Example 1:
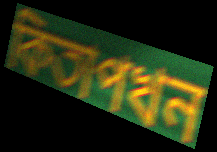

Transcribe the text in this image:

কিতাপখন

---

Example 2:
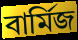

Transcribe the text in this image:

বাৰ্মিজ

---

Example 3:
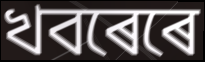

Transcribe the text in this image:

খবৰেৰে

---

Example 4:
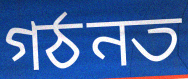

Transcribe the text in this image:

গঠনত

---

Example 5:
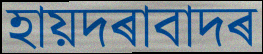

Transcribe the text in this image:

হায়দৰাবাদৰ